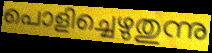
പൊളിച്ചെഴുതുന്നു